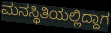
ಮನಸ್ಥಿತಿಯಲ್ಲಿದ್ದಾಗ